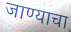
जाण्याचा